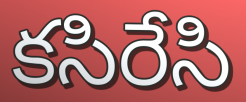
కసిరేసి